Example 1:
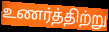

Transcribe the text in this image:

உணர்த்திற்று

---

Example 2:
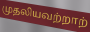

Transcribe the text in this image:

முதலியவற்றாற்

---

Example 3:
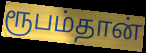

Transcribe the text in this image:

ரூபம்தான்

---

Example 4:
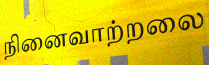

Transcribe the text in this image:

நினைவாற்றலை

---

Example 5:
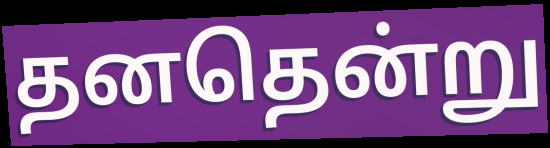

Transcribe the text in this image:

தனதென்று